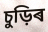
চুড়িৰ